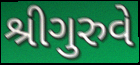
શ્રીગુરુવે